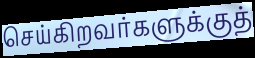
செய்கிறவர்களுக்குத்